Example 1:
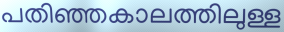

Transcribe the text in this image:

പതിഞ്ഞകാലത്തിലുള്ള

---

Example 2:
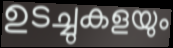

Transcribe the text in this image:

ഉടച്ചുകളയും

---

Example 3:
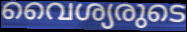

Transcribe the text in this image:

വൈശ്യരുടെ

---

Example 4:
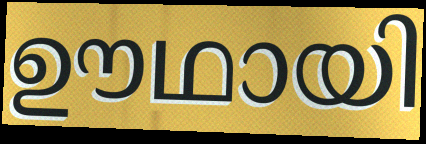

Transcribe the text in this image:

ഊഥായി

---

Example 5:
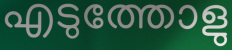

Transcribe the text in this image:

എടുത്തോളു